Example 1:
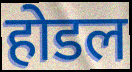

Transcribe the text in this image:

होडल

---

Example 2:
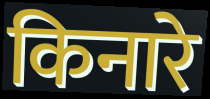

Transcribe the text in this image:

किनारे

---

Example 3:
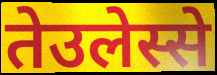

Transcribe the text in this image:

तेउलेस्से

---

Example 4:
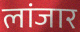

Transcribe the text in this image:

लांजार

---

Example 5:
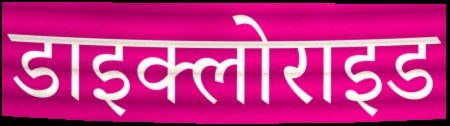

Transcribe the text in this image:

डाइक्लोराइड